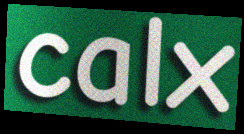
calx